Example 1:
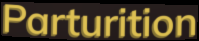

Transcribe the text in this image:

Parturition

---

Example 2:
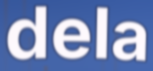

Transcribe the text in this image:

dela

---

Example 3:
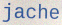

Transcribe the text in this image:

jache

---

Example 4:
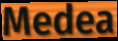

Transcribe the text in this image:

Medea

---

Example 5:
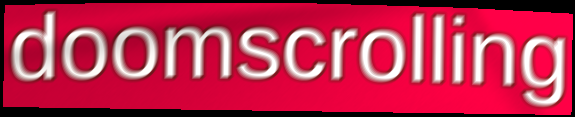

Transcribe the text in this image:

doomscrolling